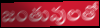
జంతువులతో